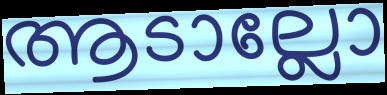
ആടാല്ലോ